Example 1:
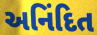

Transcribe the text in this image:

અનિંદિત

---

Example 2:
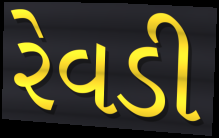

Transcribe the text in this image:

રેવડી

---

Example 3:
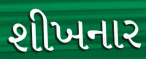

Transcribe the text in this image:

શીખનાર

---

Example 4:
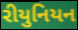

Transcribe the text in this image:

રીયુનિયન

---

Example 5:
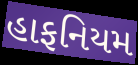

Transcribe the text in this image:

હાફનિયમ